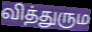
வித்துரும